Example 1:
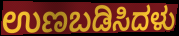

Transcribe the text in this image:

ಉಣಬಡಿಸಿದಳು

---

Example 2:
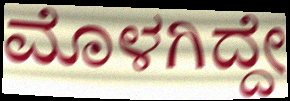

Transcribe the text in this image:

ಮೊಳಗಿದ್ದೇ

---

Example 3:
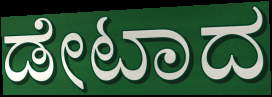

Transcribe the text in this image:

ಡೇಟಾದ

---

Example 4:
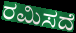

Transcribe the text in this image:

ರಮಿಸದೆ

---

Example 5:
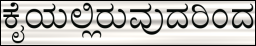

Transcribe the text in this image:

ಕೈಯಲ್ಲಿರುವುದರಿಂದ